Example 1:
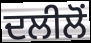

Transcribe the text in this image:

ਦਲੀਲੋਂ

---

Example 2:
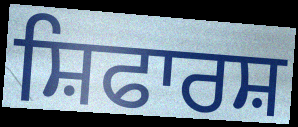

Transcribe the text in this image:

ਸ਼ਿਫਾਰਸ਼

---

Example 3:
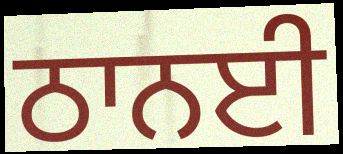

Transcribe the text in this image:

ਠਾਨਈ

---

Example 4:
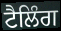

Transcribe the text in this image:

ਟੈਲਿੰਗ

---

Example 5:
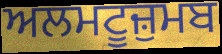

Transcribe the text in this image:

ਅਲਮਟੂਜ਼ੁਮਬ